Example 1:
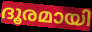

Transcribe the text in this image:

ദൂരമായി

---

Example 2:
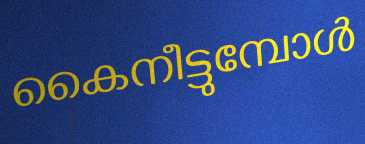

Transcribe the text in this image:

കൈനീട്ടുമ്പോൾ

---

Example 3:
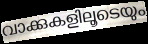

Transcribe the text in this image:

വാക്കുകളിലൂടെയും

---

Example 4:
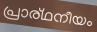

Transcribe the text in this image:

പ്രാര്ഥനീയം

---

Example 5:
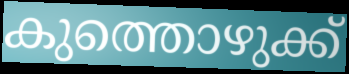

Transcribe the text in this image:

കുത്തൊഴുക്ക്